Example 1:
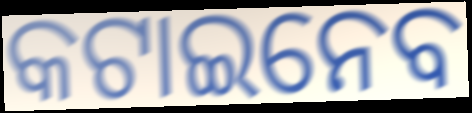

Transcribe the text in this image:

କଟାଇନେବ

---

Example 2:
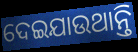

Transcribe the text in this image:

ଦେଇଯାଉଥାନ୍ତି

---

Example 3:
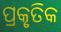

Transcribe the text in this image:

ପ୍ରକୃତିକ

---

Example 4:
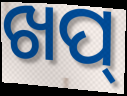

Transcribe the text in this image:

ଖପ୍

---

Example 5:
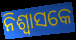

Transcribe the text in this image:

ନିଶ୍ଵାସକେ